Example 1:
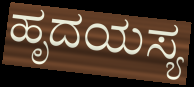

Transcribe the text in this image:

ಹೃದಯಸ್ಯ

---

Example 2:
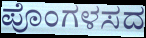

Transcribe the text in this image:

ಪೊಂಗಳಸದ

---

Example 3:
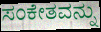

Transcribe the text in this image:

ಸಂಕೇತವನ್ನು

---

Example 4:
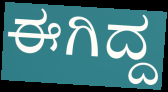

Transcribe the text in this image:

ಈಗಿದ್ದ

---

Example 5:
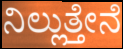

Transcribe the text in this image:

ನಿಲ್ಲುತ್ತೇನೆ